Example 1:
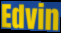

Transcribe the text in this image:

Edvin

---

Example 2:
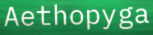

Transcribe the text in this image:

Aethopyga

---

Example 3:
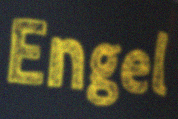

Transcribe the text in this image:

Engel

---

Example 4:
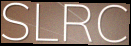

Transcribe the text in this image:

SLRC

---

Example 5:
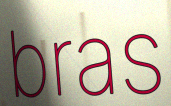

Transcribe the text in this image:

bras